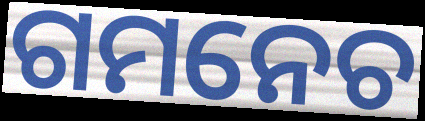
ଗମନେଚ